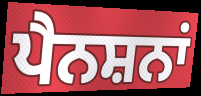
ਪੈਨਸ਼ਨਾਂ